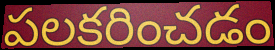
పలకరించడం